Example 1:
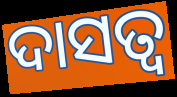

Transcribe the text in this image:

ଦାସତ୍ୱ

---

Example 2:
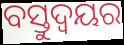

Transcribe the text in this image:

ବସ୍ତୁଦ୍ୱୟର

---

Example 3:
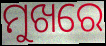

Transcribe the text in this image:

ମୁଖରେ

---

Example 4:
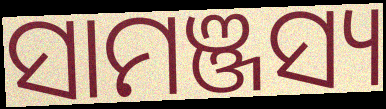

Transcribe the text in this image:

ସାମଞ୍ଜସ୍ୟ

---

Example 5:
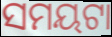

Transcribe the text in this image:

ସମୟଟା